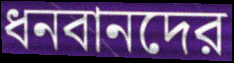
ধনবানদের